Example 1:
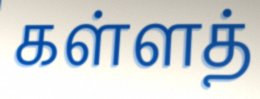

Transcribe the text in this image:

கள்ளத்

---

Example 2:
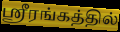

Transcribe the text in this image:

ஸ்ரீரங்கத்தில்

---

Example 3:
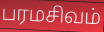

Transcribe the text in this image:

பரமசிவம்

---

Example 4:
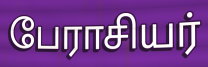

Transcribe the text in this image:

பேராசியர்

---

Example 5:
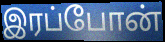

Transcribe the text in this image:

இரப்போன்